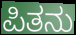
ಪಿತನು